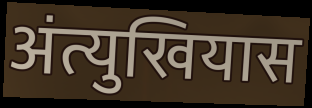
अंत्युखियास